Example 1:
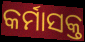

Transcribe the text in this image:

କର୍ମାସକ୍ତ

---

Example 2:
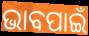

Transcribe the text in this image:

ଭାବପାଇଁ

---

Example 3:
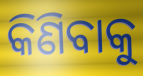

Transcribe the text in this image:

କିଣିବାକୁ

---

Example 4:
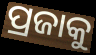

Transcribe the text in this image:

ପ୍ରଜାକୁ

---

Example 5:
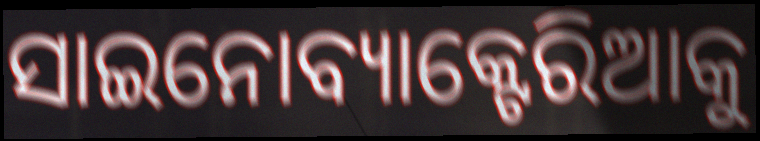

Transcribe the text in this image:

ସାଇନୋବ୍ୟାକ୍ଟେରିଆକୁ